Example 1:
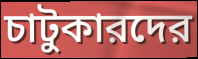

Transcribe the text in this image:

চাটুকারদের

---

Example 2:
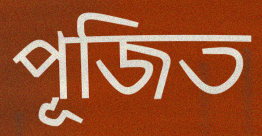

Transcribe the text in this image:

পূজিত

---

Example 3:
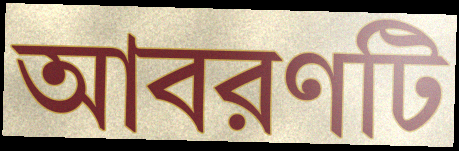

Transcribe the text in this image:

আবরণটি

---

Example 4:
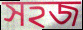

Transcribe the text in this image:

সহজ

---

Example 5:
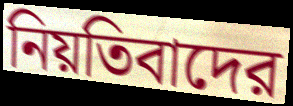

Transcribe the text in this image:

নিয়তিবাদের